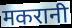
मकरानी